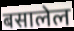
बसालेल